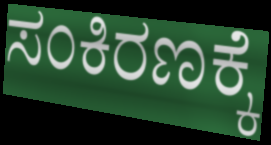
ಸಂಕಿರಣಕ್ಕೆ